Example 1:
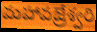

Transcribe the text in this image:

మహావజ్రేశ్వరి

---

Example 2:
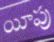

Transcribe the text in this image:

యీపు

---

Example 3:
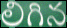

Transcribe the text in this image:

లిగిన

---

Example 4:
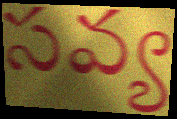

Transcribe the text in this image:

సవ్య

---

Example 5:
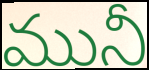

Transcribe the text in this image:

మునీ